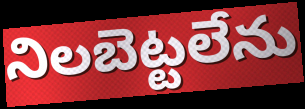
నిలబెట్టలేను